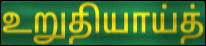
உறுதியாய்த்